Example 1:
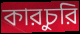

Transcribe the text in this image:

কারচুরি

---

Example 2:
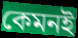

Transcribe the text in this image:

কেমনই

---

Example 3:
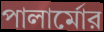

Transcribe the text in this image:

পালার্মোর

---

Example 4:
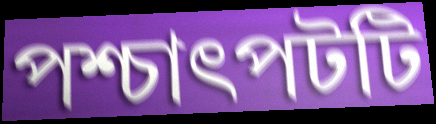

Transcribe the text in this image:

পশ্চাৎপটটি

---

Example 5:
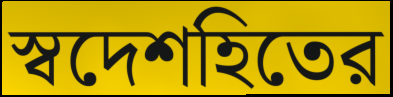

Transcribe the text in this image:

স্বদেশহিতের